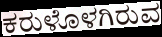
ಕರುಳೊಳಗಿರುವ